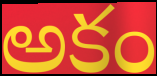
అకం